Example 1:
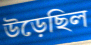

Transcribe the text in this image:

উড়েছিল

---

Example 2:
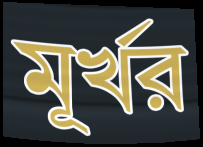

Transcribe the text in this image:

মূর্খর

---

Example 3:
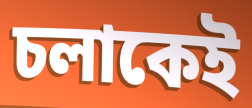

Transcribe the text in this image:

চলাকেই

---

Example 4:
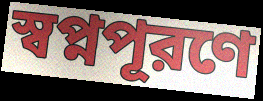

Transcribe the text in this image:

স্বপ্নপূরণে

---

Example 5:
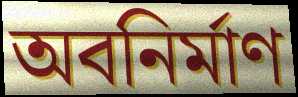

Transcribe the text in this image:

অবনির্মাণ